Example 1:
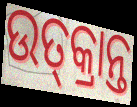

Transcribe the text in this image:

ଉତ୍‌କ୍ରାନ୍ତ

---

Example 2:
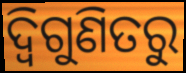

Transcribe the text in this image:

ଦ୍ୱିଗୁଣିତରୁ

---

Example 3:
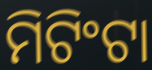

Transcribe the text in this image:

ମିଟିଂଟା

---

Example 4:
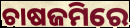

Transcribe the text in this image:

ଚାଷଜମିରେ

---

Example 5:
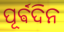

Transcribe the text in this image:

ପୂର୍ଵଦିନ